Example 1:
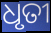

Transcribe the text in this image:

ଧୃତୀ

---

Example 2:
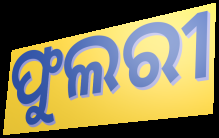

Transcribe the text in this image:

ଫୁଲରୀ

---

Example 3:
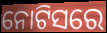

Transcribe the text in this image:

ନୋଟିସରେ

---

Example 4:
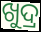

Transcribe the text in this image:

ଖୁଦ୍ର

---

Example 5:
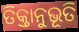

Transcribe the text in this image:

ତିକ୍ତାନୁଭୂତି